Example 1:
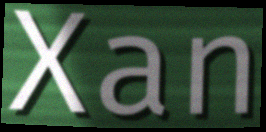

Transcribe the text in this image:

Xan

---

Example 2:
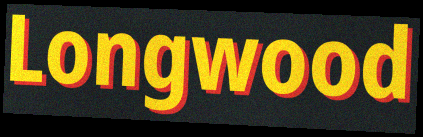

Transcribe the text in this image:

Longwood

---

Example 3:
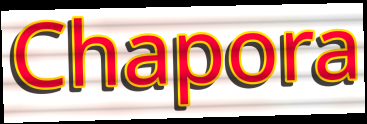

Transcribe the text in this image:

Chapora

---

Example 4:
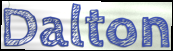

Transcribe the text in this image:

Dalton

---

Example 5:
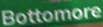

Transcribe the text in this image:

Bottomore